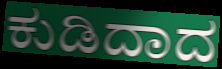
ಕುಡಿದಾದ